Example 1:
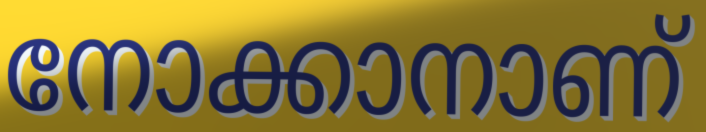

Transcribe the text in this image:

നോക്കാനാണ്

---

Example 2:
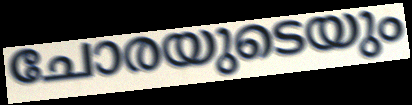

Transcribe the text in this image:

ചോരയുടെയും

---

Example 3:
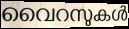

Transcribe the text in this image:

വൈറസുകൾ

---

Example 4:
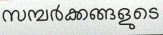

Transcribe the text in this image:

സമ്പർക്കങ്ങളുടെ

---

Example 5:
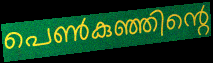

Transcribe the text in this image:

പെൺകുഞ്ഞിന്റെ